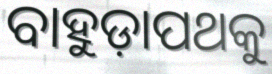
ବାହୁଡ଼ାପଥକୁ